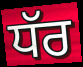
ਧੱਰ